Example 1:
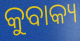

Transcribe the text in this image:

କୁବାକ୍ୟ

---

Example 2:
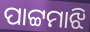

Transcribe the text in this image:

ପାଟ୍ଟମାଝି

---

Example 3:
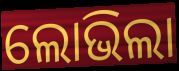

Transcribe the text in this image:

ଲୋଭିଲା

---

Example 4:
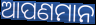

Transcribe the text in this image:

ଆପଣମାନ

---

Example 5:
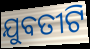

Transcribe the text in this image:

ଯୁବତୀଟି